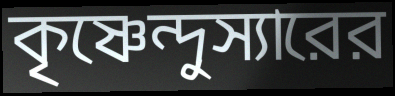
কৃষ্ণেন্দুস্যারের